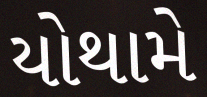
યોથામે